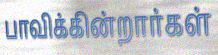
பாவிக்கின்றார்கள்